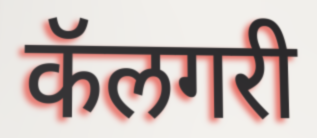
कॅलगरी